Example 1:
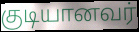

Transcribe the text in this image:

குடியானவர்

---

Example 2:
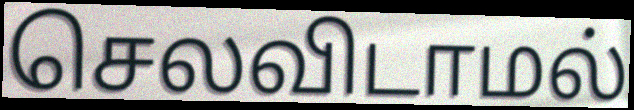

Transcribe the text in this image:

செலவிடாமல்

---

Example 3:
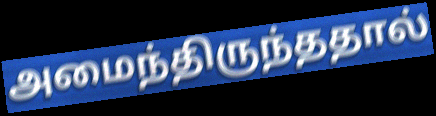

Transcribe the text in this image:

அமைந்திருந்ததால்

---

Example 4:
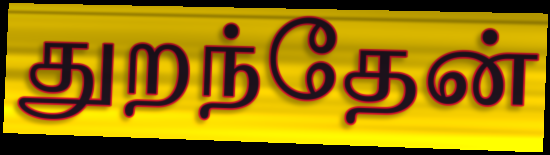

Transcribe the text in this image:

துறந்தேன்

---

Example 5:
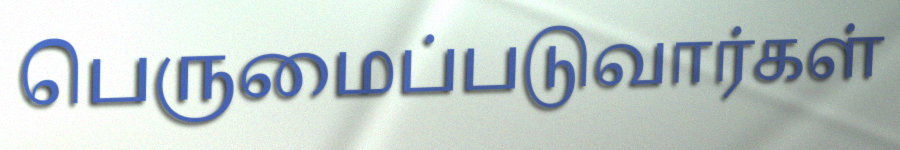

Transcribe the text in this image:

பெருமைப்படுவார்கள்